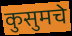
कुसुमचे